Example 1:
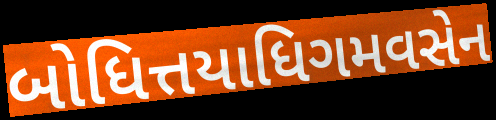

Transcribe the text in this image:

બોધિત્તયાધિગમવસેન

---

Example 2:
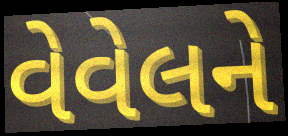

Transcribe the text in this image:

વેવેલને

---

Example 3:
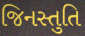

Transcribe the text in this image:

જિનસ્તુતિ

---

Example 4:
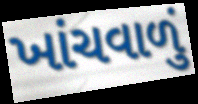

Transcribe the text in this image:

ખાંચવાળું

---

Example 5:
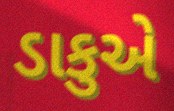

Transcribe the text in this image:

ડાકુએ